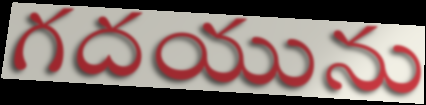
గదయును